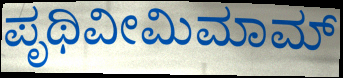
ಪೃಥಿವೀಮಿಮಾಮ್